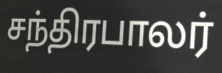
சந்திரபாலர்